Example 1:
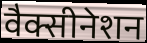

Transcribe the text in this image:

वैक्सीनेशन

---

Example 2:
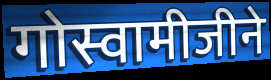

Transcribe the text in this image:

गोस्वामीजीने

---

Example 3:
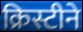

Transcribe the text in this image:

क्रिस्टीने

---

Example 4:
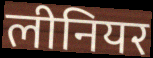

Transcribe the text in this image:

लीनियर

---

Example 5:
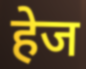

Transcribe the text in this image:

हेज